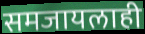
समजायलाही